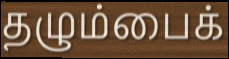
தழும்பைக்